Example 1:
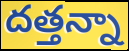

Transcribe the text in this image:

దత్తన్నా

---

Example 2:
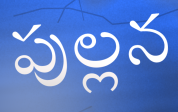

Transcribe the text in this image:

పుల్లన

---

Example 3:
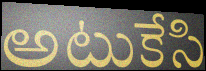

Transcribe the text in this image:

అటుకేసి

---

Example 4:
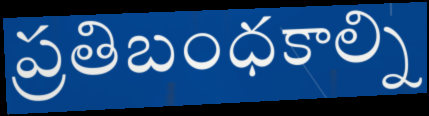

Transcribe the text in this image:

ప్రతిబంధకాల్ని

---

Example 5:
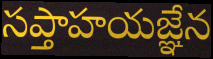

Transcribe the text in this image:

సప్తాహయజ్ఞేన